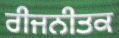
ਰੀਜਨੀਤਕ